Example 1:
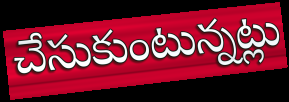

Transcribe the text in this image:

చేసుకుంటున్నట్లు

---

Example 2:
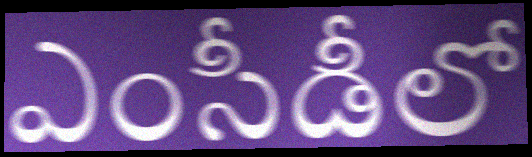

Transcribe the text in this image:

ఎంసీడీలో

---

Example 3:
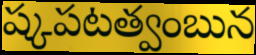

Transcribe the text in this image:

ష్కపటత్వంబున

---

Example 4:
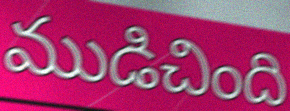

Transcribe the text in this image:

ముడిచింది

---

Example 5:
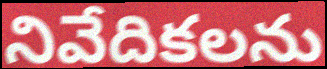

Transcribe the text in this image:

నివేదికలను